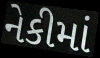
નેકીમાં